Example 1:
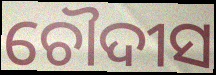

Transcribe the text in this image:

ଚୌଦୀସ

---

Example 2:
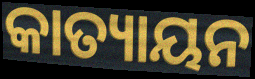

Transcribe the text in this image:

କାତ୍ୟାୟନ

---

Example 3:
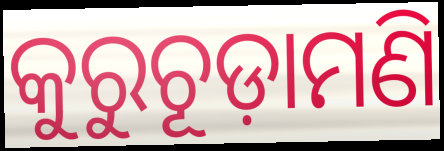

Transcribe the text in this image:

କୁରୁଚୂଡ଼ାମଣି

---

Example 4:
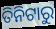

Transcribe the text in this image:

ତିନିଟାରୁ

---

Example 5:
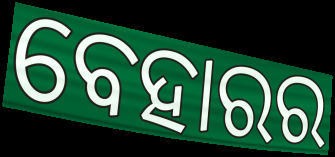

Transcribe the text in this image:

ବେହାରର